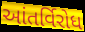
આંતર્વિરોધ